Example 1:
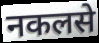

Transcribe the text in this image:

नकलसे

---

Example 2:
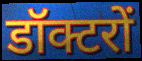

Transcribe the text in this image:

डॉक्टरों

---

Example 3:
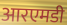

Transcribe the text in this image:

आरएमडी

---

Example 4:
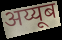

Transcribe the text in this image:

अय्यूब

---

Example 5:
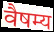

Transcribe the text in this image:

वैषम्‍य